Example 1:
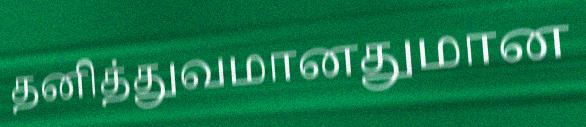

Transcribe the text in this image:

தனித்துவமானதுமான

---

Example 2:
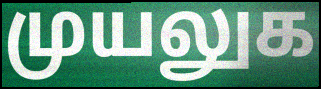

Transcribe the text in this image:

முயலுக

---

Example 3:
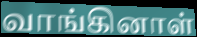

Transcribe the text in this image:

வாங்கினாள்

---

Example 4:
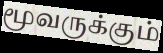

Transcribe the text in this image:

மூவருக்கும்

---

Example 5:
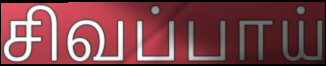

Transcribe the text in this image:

சிவப்பாய்